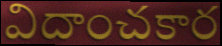
విదాంచకార